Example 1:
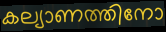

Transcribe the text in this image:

കല്യാണത്തിനോ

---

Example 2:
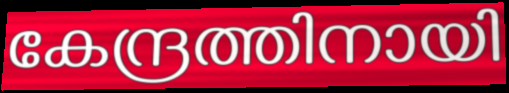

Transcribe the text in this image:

കേന്ദ്രത്തിനായി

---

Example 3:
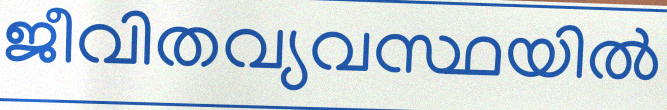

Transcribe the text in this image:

ജീവിതവ്യവസ്ഥയിൽ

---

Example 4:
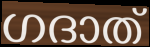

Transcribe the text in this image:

ഗദാത്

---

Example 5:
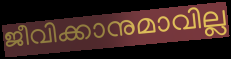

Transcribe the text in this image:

ജീവിക്കാനുമാവില്ല